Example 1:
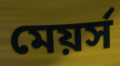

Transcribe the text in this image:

মেয়র্স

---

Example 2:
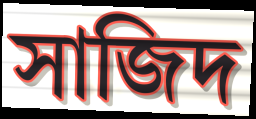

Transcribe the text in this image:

সাজিদ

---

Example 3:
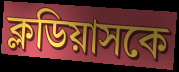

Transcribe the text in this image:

ক্লডিয়াসকে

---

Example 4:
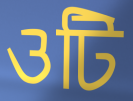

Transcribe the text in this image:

ওটি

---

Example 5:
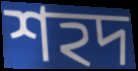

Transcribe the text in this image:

শহদ